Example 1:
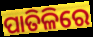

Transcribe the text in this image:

ପାତିଳିରେ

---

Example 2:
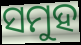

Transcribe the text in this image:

ସମୁହ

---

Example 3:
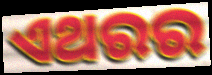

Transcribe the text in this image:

ଏଥରର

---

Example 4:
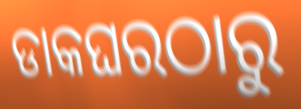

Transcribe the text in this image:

ଡାକଘରଠାରୁ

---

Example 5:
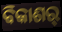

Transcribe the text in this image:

ବିକାଶର୍